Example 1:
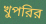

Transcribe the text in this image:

খুপরির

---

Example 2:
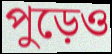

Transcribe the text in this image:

পুড়েও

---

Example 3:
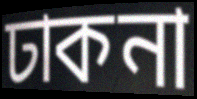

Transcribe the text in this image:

ঢাকনা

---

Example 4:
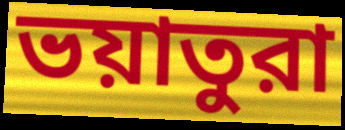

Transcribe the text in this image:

ভয়াতুরা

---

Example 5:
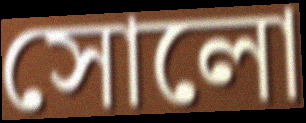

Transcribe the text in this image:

সোলো